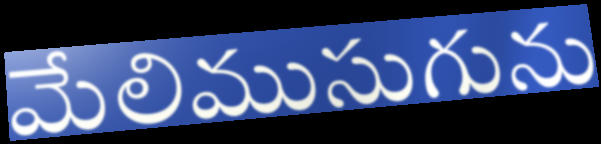
మేలిముసుగును